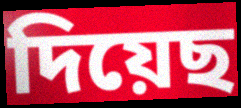
দিয়েছ